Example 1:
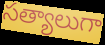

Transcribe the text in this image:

సత్యాలుగా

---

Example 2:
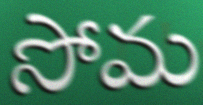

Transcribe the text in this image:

సోమ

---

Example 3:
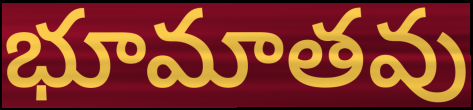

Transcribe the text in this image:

భూమాతవు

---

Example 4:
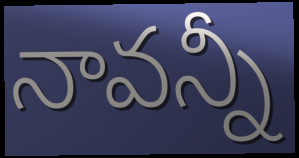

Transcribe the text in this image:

నావన్నీ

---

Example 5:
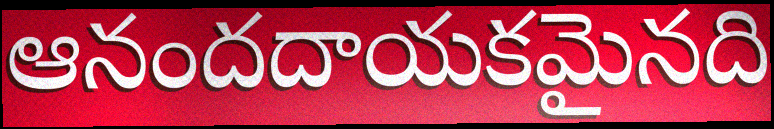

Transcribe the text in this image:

ఆనందదాయకమైనది